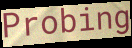
Probing